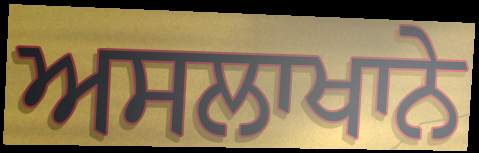
ਅਸਲਾਖਾਨੇ